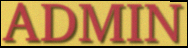
ADMIN